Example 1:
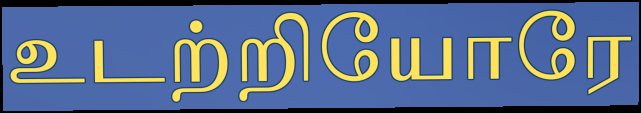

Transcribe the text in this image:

உடற்றியோரே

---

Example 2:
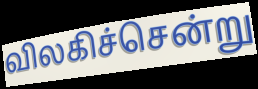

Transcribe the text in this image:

விலகிச்சென்று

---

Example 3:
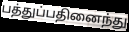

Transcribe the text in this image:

பத்துப்பதினைந்து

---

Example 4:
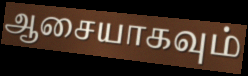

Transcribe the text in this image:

ஆசையாகவும்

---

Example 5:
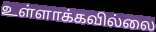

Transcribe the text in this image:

உள்ளாக்கவில்லை